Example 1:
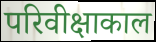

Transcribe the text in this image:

परिवीक्षाकाल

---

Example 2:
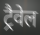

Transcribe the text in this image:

ट्रैवेल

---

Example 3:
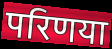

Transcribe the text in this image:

परिणया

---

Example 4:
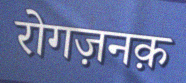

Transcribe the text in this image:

रोगज़नक़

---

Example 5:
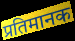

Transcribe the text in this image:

प्रतिमानक